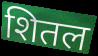
शितल